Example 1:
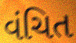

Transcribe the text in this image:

વંચિત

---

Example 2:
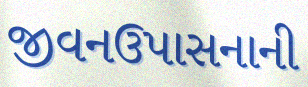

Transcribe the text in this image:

જીવનઉપાસનાની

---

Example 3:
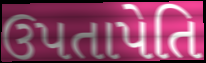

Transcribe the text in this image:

ઉપતાપેતિ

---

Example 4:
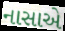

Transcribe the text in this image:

નાસાએ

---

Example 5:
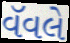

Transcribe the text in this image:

વૅવલે